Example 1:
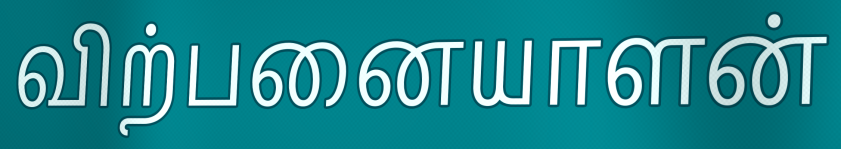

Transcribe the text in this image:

விற்பனையாளன்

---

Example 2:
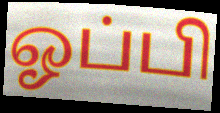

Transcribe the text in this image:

ஓப்பி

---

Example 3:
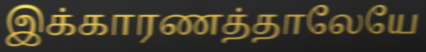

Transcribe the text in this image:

இக்காரணத்தாலேயே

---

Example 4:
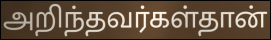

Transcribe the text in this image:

அறிந்தவர்கள்தான்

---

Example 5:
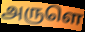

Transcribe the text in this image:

அருளெ